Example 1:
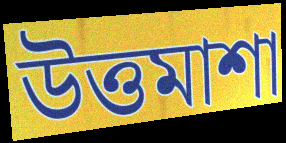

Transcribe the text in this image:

উত্তমাশা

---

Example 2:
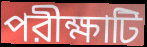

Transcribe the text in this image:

পরীক্ষাটি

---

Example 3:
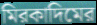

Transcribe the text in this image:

মিরকাদিমের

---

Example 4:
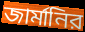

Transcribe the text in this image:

জার্মানির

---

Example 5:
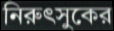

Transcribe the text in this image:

নিরুৎসুকের